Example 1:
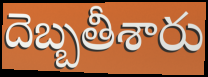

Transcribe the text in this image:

దెబ్బతీశారు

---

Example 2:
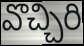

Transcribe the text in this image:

వొచ్చిరి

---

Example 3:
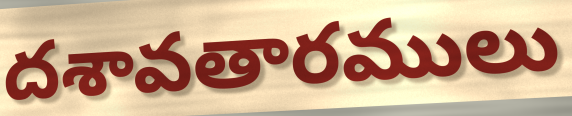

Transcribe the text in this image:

దశావతారములు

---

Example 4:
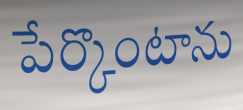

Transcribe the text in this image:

పేర్కొంటాను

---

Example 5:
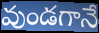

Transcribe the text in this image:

వుండగానే